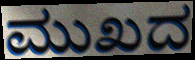
ಮುಖದ